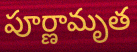
పూర్ణామృత